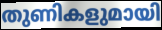
തുണികളുമായി